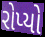
રોપ્યો